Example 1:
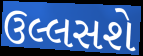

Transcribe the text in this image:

ઉલ્લસશે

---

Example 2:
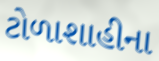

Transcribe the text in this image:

ટોળાશાહીના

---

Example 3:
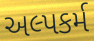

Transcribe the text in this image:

અલ્પકર્મ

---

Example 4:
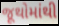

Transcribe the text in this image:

જૂથોમાંથી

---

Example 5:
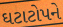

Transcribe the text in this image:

ઘટાટોપને